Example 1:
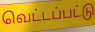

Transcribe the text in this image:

வெட்டப்பட்டு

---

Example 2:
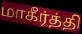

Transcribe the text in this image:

மாகீர்த்தி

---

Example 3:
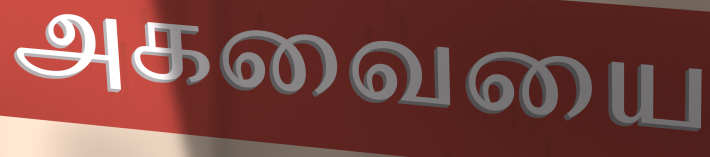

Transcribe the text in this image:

அகவையை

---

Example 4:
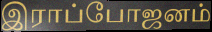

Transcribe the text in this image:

இராப்போஜனம்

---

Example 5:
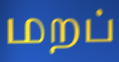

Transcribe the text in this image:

மறப்